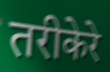
तरीकेरे